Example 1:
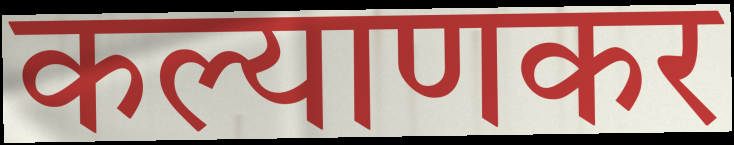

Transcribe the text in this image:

कल्याणकर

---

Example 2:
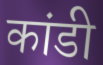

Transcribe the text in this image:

कांडी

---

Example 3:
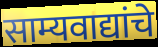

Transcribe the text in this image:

साम्यवाद्यांचे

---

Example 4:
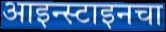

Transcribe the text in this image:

आइन्स्टाइनचा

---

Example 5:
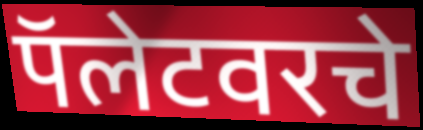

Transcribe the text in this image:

पॅलेटवरचे